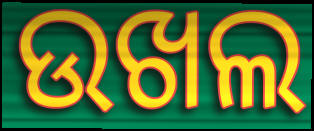
ଉଖଲ